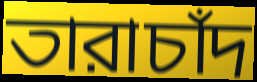
তারাচাঁদ